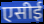
एसीई